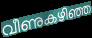
വീണുകഴിഞ്ഞ